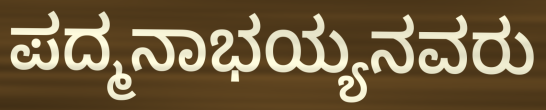
ಪದ್ಮನಾಭಯ್ಯನವರು